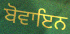
ਬੋਵਾਇਨ